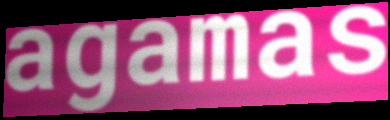
agamas